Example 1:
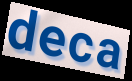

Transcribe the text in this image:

deca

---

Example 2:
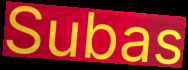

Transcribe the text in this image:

Subas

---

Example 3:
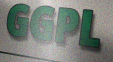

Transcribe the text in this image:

GGPL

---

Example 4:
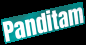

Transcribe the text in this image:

Panditam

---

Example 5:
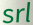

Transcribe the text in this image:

srl